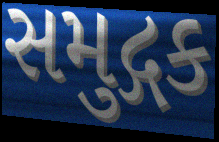
સમુદ્ગક